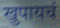
खुपायचं